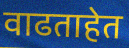
वाढताहेत